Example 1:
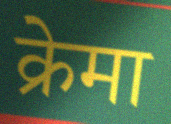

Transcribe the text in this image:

क्रेमा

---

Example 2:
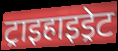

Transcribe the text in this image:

ट्राइहाइड्रेट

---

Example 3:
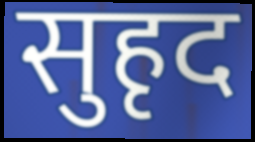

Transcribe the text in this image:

सुहृद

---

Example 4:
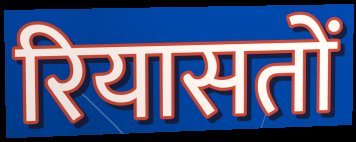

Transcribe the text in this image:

रियासतों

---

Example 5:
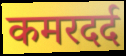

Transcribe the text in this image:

कमरदर्द